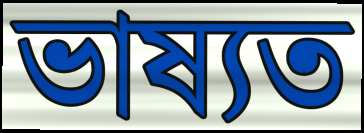
ভাষ্যত